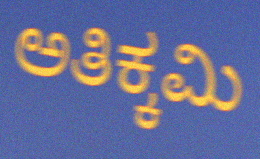
ಅತಿಕ್ಕಮಿ